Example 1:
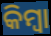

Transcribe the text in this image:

କିମ୍ବା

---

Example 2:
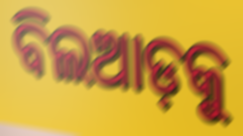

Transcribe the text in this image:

ବିଲଆଡ଼କୁ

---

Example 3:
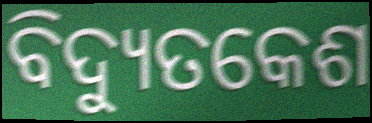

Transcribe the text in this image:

ବିଦ୍ୟୁତକେଶ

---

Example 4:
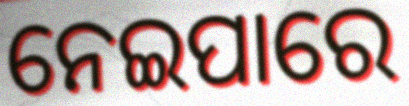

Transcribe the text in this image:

ନେଇପାରେ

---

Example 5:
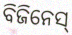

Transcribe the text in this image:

ବିଜିନେସ୍